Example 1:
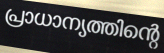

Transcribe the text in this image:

പ്രാധാന്യത്തിന്റെ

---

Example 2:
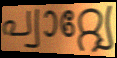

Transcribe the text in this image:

പ്വാറ്റ്യേ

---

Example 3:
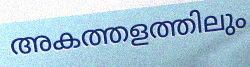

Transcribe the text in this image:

അകത്തളത്തിലും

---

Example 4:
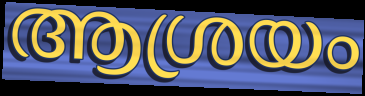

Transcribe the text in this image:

ആശ്രയം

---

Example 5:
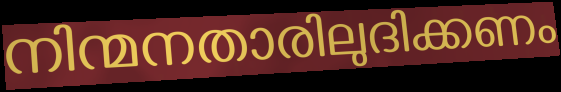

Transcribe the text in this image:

നിന്മനതാരിലുദിക്കണം